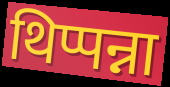
थिप्पन्ना